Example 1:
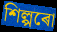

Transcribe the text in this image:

শিল্পৰো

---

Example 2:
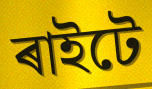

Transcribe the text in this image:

ৰাইটে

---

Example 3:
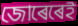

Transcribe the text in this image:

জোৰেৰেই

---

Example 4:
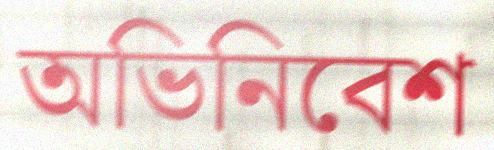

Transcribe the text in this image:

অভিনিবেশ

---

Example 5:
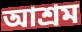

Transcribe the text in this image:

আশ্ৰম